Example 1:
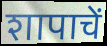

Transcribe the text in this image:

शापाचें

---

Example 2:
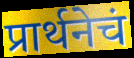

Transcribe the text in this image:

प्रार्थनेचं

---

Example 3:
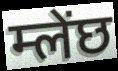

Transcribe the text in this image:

म्लेंछ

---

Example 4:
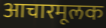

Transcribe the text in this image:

आचारमूलक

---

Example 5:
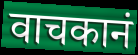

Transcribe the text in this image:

वाचकानं